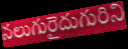
నలుగురైదుగురిని